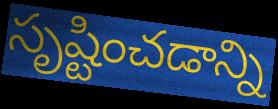
సృష్టించడాన్ని